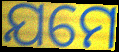
ଯମେ